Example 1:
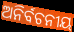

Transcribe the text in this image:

ଅନିର୍ବଚନୀୟ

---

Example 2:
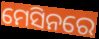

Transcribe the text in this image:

ମେସିନରେ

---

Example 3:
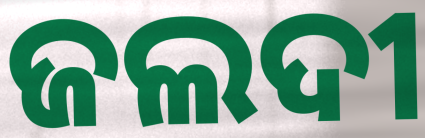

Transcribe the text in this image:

ଜଲଦୀ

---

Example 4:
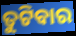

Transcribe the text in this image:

ତୁଟିବାର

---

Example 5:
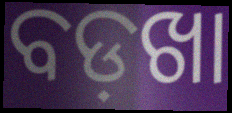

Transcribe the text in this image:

ବଡ଼ଖା